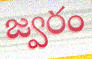
జ్వరం